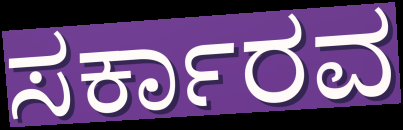
ಸರ್ಕಾರವ